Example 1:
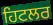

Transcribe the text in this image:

ਹਿਟਲਰ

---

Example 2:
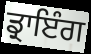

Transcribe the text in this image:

ਡ੍ਰਾਇੰਗ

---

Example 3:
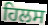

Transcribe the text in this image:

ਹਿਲਸ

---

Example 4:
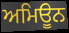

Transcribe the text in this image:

ਅਮਿਊਨ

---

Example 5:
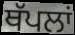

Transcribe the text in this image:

ਥੱਪਲਾਂ